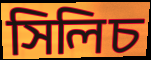
সিলিচ